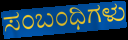
ಸಂಬಂಧಿಗಳು